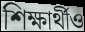
শিক্ষার্থীও